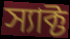
স্যাক্ট